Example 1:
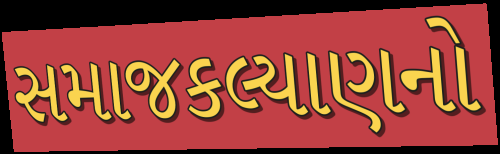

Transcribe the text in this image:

સમાજકલ્યાણનો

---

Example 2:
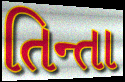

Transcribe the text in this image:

તિન્તા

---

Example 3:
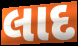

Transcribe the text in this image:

લાદ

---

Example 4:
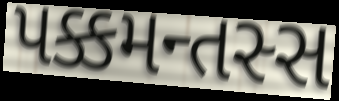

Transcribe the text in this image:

પક્કમન્તસ્સ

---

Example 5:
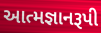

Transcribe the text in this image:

આત્મજ્ઞાનરૂપી